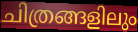
ചിത്രങ്ങളിലും